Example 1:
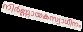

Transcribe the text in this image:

നിർണ്ണായകസ്വാധീനം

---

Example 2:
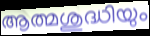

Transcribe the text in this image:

ആത്മശുദ്ധിയും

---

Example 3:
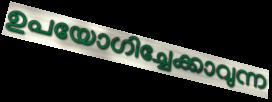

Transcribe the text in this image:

ഉപയോഗിച്ചേക്കാവുന്ന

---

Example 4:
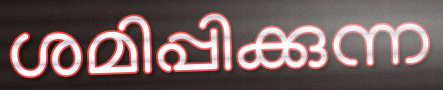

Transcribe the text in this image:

ശമിപ്പിക്കുന്ന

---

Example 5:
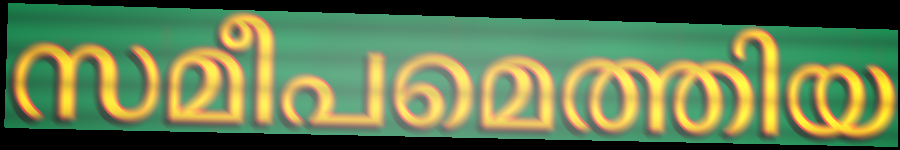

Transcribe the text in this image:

സമീപമെത്തിയ